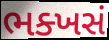
ભક્ખસં